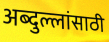
अब्दुल्लांसाठी